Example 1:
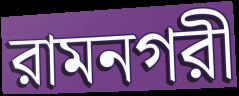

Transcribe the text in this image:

রামনগরী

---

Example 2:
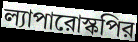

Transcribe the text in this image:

ল্যাপারোস্কপির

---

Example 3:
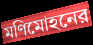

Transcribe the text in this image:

মণিমোহনের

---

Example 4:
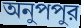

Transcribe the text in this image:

অনুপপুর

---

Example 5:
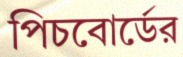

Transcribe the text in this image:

পিচবোর্ডের